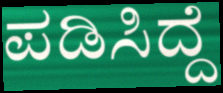
ಪಡಿಸಿದ್ದೆ